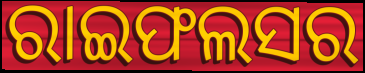
ରାଇଫଲସର